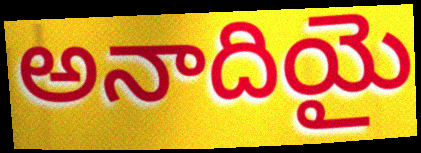
అనాదియై